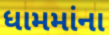
ધામમાંના